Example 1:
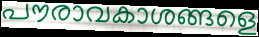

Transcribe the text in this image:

പൗരാവകാശങ്ങളെ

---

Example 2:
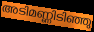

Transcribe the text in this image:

അടിമണ്ണിടിഞ്ഞു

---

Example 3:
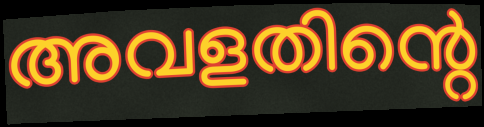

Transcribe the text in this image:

അവളതിന്റെ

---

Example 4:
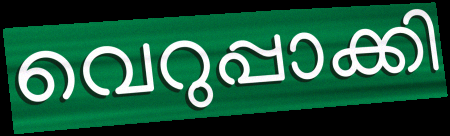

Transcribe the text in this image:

വെറുപ്പാക്കി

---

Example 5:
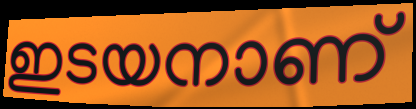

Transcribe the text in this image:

ഇടയനാണ്